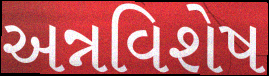
અન્નવિશેષ